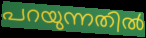
പറയുന്നതിൽ